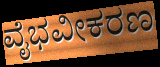
ವೈಭವೀಕರಣ